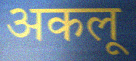
अकलू